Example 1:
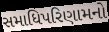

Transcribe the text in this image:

સમાધિપરિણામનો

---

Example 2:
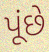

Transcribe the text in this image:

પૂંછે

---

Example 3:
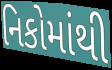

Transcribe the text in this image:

નિકોમાંથી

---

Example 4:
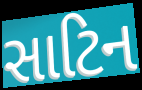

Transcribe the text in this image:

સાટિન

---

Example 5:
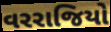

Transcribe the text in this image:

વરરાજિયો